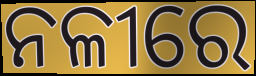
ନଳୀରେ